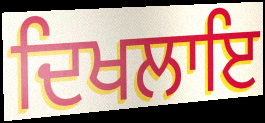
ਦਿਖਲਾਇ